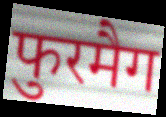
फुरमैग